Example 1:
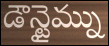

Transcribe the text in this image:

డౌన్టైమ్ను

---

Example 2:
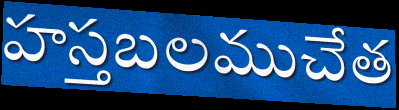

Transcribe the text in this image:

హస్తబలముచేత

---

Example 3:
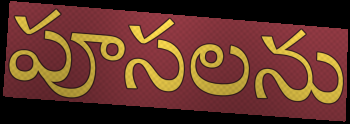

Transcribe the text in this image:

పూసలను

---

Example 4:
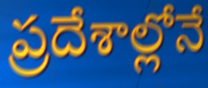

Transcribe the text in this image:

ప్రదేశాల్లోనే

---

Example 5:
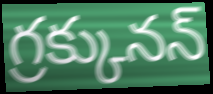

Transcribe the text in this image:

గ్రక్కునన్